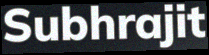
Subhrajit